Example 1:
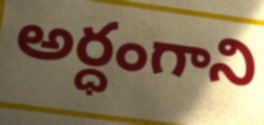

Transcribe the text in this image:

అర్ధంగాని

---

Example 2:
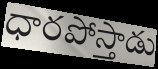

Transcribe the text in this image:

ధారపోస్తాడు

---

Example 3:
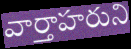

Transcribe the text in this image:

వార్తాహరుని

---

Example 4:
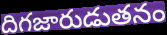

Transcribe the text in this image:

దిగజారుడుతనం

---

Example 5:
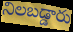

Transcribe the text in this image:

నిలబడ్డారు